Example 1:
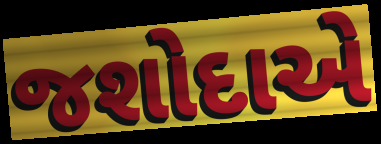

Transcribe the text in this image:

જશોદાએ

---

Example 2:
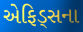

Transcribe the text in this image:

એફિડ્સના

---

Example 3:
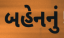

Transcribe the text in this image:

બહેનનું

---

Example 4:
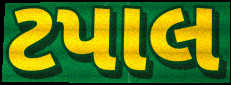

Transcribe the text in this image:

ટપાલ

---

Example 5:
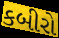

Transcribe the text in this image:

કબીરો